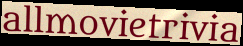
allmovietrivia